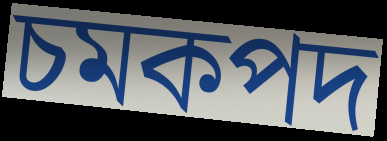
চমকপদ